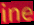
ine